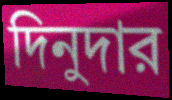
দিনুদার